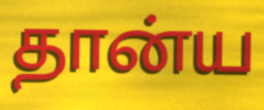
தான்ய